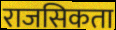
राजसिकता